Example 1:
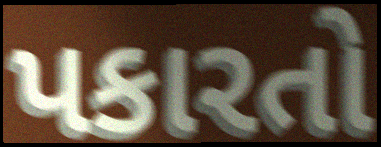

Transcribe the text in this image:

પકારતો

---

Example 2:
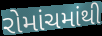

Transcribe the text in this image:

રોમાંચમાંથી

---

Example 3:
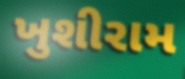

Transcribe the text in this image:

ખુશીરામ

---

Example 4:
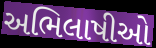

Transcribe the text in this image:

અભિલાષીઓ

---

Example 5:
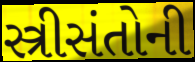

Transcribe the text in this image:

સ્ત્રીસંતોની